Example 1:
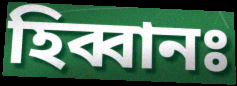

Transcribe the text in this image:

হিব্বানঃ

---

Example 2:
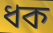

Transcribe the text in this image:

ধক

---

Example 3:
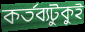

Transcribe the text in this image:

কর্তব্যটুকুই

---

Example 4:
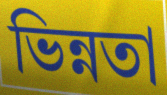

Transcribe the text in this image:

ভিন্নতা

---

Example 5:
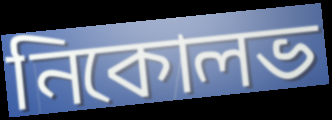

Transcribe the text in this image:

নিকোলভ